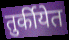
तुर्कीयेत